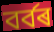
বৰ্বৰ